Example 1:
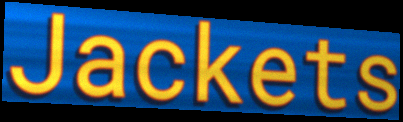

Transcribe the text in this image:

Jackets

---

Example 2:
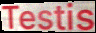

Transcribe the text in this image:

Testis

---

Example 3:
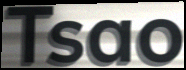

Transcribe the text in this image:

Tsao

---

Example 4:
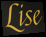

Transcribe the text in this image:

Lise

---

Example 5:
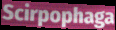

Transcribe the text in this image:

Scirpophaga